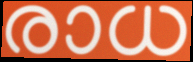
രാധ